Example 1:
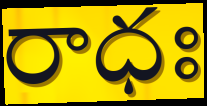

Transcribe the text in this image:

రాధః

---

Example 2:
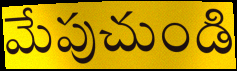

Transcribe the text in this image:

మేపుచుండి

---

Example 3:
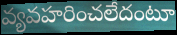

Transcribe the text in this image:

వ్యవహరించలేదంటూ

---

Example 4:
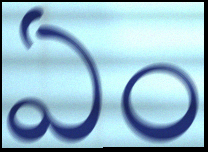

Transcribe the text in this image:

ఏం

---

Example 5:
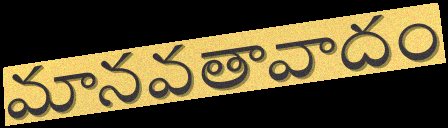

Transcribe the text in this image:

మానవతావాదం